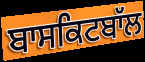
ਬਾਸਕਿਟਬਾੱਲ